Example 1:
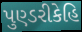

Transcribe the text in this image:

પુણ્ડરીકેહિ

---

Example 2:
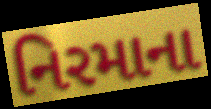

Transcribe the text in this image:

નિરમાના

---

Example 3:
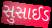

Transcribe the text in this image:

સુસાઈડ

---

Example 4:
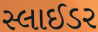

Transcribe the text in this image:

સ્લાઈડર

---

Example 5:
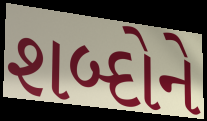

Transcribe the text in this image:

શબ્દોને